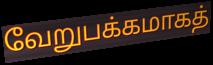
வேறுபக்கமாகத்